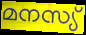
മനസ്യ്